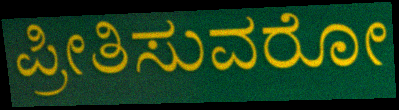
ಪ್ರೀತಿಸುವರೋ